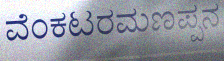
ವೆಂಕಟರಮಣಪ್ಪನ